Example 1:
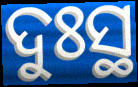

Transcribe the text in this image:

ଦୁଃସ୍ଥ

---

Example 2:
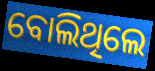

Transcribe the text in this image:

ବୋଲିଥିଲେ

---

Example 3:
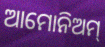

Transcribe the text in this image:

ଆମୋନିଅମ୍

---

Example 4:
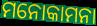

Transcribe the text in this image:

ମନୋକାମନା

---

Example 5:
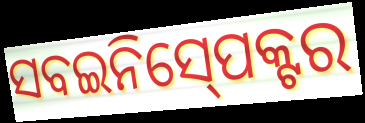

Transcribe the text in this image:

ସବଇନିସ୍‍ପେକ୍ଟର